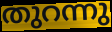
തുറന്നു